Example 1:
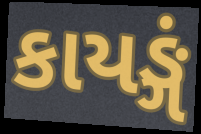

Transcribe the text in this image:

કાયઙ્ગં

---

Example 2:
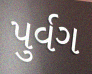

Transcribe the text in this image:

પુર્વગ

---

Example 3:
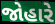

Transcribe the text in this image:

જોહારે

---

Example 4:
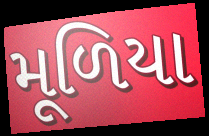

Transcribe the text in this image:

મૂળિયા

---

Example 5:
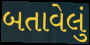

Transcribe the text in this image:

બતાવેલું